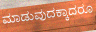
ಮಾಡುವುದಕ್ಕಾದರೂ